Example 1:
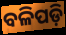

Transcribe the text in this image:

ବଳିପଡ଼ି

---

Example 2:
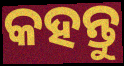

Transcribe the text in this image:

କହନ୍ତୁ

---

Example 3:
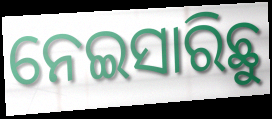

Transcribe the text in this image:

ନେଇସାରିଛୁ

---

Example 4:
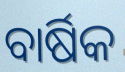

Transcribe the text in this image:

ବାର୍ଷିକ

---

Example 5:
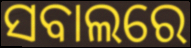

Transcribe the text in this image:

ସବାଲରେ